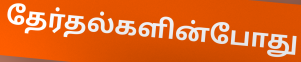
தேர்தல்களின்போது